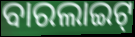
ବାରଲାଇଟ୍